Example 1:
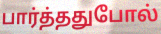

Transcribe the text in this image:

பார்த்ததுபோல்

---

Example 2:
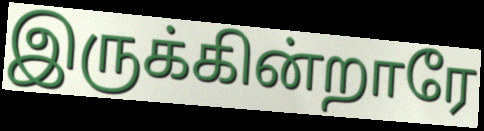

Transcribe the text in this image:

இருக்கின்றாரே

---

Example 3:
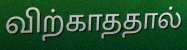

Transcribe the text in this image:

விற்காததால்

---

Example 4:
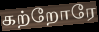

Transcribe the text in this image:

கற்றோரே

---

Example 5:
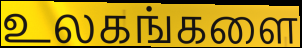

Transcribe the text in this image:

உலகங்களை